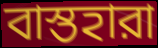
বাস্তহারা